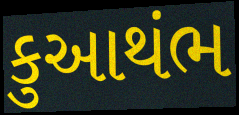
કુઆથંભ